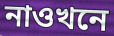
নাওখনে